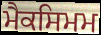
ਮੈਕਸਿਮਮ